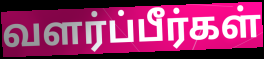
வளர்ப்பீர்கள்